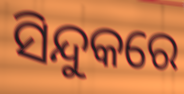
ସିନ୍ଦୁକରେ